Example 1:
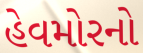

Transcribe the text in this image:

હેવમોરનો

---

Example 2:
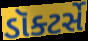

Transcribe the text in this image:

ડૉક્ટર્સે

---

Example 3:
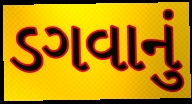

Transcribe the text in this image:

ડગવાનું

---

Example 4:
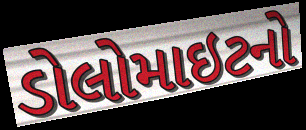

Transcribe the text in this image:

ડોલોમાઇટનો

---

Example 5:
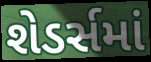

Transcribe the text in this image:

શેડર્સમાં